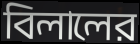
বিলালের